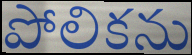
పోలికను